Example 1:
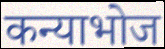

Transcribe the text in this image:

कन्याभोज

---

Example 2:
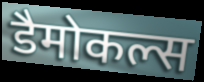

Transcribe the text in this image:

डैमोकल्स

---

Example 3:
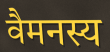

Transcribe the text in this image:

वैमनस्य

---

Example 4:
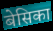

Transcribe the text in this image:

बेसिका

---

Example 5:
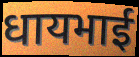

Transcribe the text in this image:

धायभाई